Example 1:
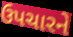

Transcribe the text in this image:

ઉપચારને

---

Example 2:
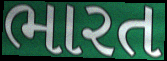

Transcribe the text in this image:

ભારત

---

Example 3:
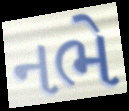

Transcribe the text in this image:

નભે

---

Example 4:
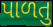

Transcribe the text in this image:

પાળતુ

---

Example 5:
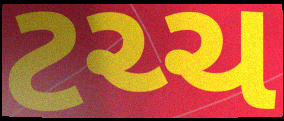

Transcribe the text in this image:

ટચ્ચ